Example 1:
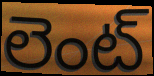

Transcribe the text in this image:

లెంట్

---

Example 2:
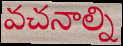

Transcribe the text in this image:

వచనాల్ని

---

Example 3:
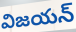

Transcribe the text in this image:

విజయన్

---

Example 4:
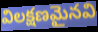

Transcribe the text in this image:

విలక్షణమైనవి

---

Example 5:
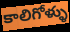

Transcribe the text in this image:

కాలిగోళ్ళు